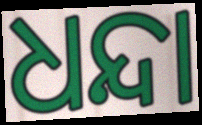
ଧନ୍ଦା